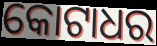
କୋଟାଧର